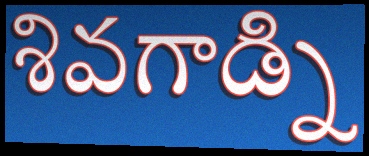
శివగాడ్ని